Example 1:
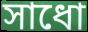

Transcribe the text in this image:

সাধো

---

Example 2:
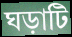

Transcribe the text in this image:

ঘড়াটি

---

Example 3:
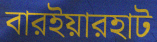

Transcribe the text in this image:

বারইয়ারহাট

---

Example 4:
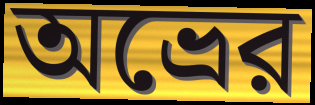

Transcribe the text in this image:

অভ্রের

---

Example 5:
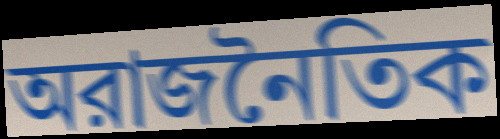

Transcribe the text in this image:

অরাজনৈতিক